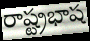
రాష్ట్రభాష